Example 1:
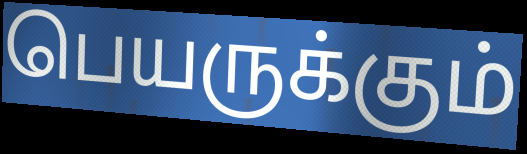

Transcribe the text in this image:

பெயருக்கும்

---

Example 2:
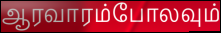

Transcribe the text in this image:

ஆரவாரம்போலவும்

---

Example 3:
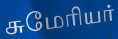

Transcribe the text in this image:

சுமேரியர்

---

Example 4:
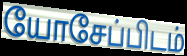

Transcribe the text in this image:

யோசேப்பிடம்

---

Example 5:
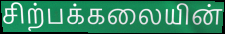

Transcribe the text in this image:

சிற்பக்கலையின்